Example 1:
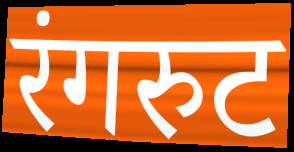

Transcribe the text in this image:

रंगरुट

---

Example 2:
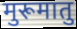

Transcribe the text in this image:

मुरूमातु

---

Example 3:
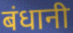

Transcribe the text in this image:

बंधानी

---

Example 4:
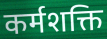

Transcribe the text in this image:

कर्मशक्ति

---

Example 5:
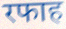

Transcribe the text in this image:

रफाह